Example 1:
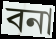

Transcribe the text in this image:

বনা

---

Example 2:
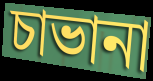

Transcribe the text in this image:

চাভানা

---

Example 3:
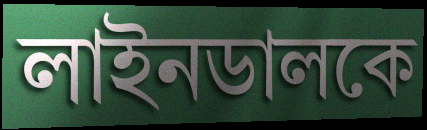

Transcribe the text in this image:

লাইনডালকে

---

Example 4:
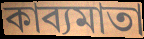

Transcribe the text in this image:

কাব্যমাতা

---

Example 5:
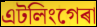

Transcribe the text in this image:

এটলিংগেৰা